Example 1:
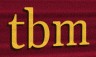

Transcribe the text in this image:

tbm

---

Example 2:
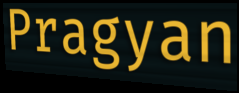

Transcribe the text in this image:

Pragyan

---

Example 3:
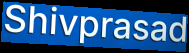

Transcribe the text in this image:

Shivprasad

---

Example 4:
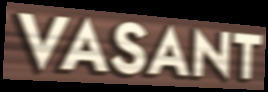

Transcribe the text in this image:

VASANT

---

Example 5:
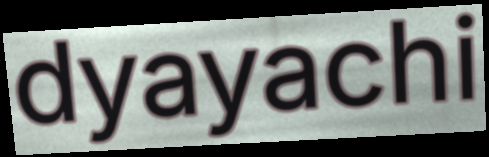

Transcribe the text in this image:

dyayachi